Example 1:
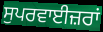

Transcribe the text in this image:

ਸੁਪਰਵਾਈਜ਼ਰਾਂ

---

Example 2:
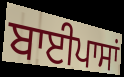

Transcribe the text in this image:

ਬਾਈਪਾਸਾਂ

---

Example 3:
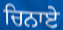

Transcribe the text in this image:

ਚਿਨਾਏ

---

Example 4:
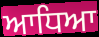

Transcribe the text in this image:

ਆਧਿਆ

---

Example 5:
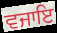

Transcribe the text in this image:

ਵਜਾਇ